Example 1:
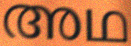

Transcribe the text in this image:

അഥ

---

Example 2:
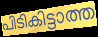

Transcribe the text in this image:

പിടികിട്ടാത്ത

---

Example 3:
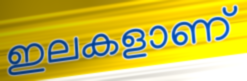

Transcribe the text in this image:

ഇലകളാണ്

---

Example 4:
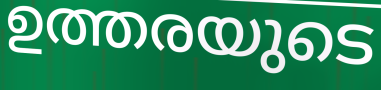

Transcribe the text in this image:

ഉത്തരയുടെ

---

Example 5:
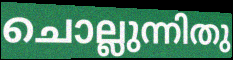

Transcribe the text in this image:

ചൊല്ലുന്നിതു